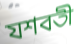
যশবতী